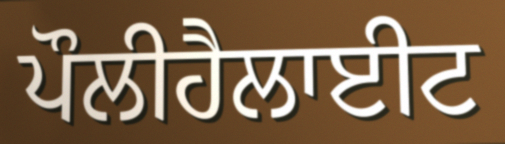
ਪੌਲੀਹੈਲਾਈਟ